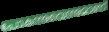
പോകുന്നുവെന്നുമാണ്